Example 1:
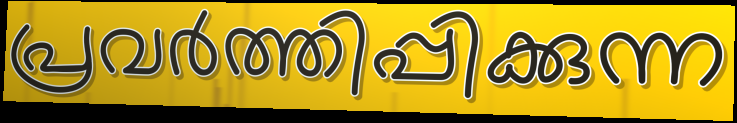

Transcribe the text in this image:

പ്രവർത്തിപ്പിക്കുന്ന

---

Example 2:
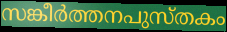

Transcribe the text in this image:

സങ്കീർത്തനപുസ്തകം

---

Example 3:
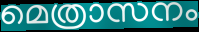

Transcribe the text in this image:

മെത്രാസനം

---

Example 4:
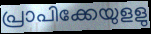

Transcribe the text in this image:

പ്രാപിക്കേയുളളു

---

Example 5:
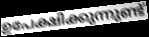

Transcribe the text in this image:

ഉപേക്ഷിക്കുന്നുണ്ട്